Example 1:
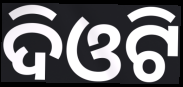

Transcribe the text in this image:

ଦିଓଟି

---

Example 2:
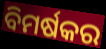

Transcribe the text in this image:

ବିମର୍ଷକର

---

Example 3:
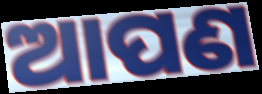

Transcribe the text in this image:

ଆପଣ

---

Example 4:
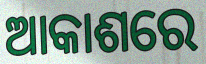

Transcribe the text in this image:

ଆକାଶରେ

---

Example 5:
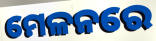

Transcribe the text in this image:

ମେଳନରେ